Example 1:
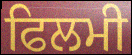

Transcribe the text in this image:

ਫਿਲਮੀ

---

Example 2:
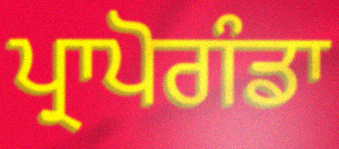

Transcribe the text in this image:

ਪ੍ਰਾਪੋਗੰਡਾ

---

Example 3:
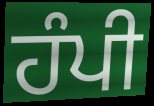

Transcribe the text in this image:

ਹੰਪੀ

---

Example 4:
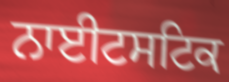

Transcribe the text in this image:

ਨਾਈਟਸਟਿਕ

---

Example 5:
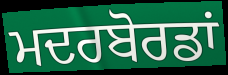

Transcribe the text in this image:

ਮਦਰਬੋਰਡਾਂ